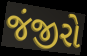
જંજીરો